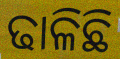
ଢାଳିଛି